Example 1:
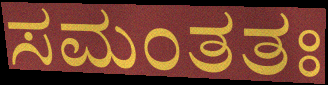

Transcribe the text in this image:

ಸಮಂತತಃ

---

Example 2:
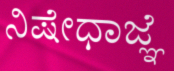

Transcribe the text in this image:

ನಿಷೇಧಾಜ್ಞೆ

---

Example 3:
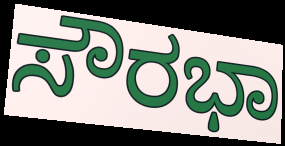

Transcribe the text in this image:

ಸೌರಭಾ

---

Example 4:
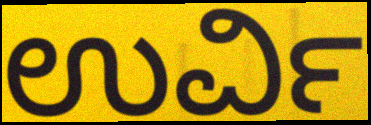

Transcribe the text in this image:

ಉರ್ವಿ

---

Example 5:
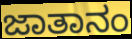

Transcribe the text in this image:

ಜಾತಾನಂ